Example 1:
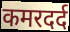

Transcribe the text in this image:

कमरदर्द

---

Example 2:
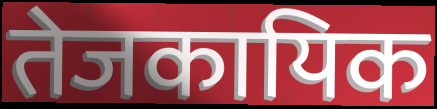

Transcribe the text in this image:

तेजकायिक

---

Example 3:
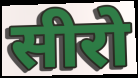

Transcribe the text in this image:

सीरो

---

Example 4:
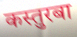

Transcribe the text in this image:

कस्तुरबा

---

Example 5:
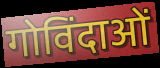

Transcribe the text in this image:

गोविंदाओं